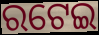
ରଟେଇ